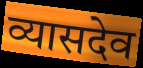
व्यासदेव